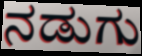
ನಡುಗು